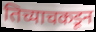
तिच्याचकडून